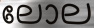
ലോല